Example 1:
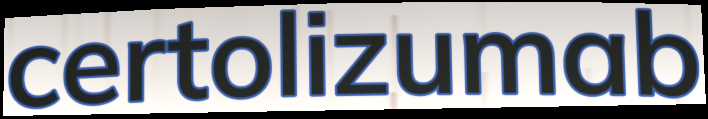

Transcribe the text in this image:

certolizumab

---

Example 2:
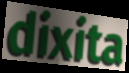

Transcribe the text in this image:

dixita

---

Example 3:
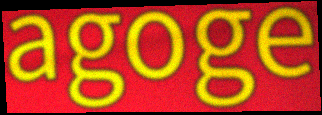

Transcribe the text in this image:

agoge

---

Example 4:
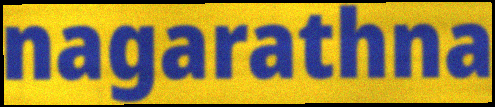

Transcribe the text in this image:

nagarathna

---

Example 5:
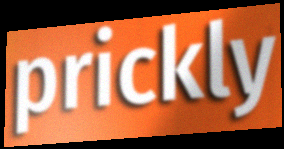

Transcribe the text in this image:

prickly